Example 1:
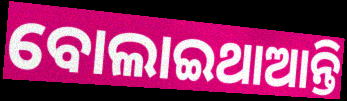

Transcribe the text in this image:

ବୋଲାଇଥାଆନ୍ତି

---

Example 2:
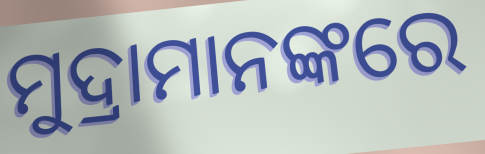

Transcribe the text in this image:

ମୁଦ୍ରାମାନଙ୍କରେ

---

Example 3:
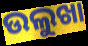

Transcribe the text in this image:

ଉଲୁଖା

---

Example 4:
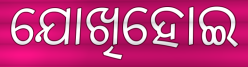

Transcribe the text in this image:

ଯୋଖିହୋଇ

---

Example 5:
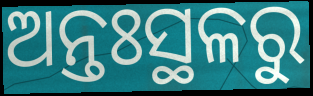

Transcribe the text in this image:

ଅନ୍ତଃସ୍ଥଳରୁ